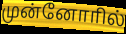
முன்னோரில்